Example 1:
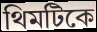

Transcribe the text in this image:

থিমটিকে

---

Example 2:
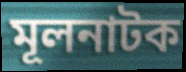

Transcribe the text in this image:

মূলনাটক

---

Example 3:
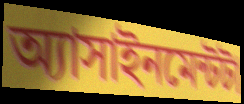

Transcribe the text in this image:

অ্যাসাইনমেন্টটা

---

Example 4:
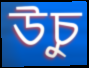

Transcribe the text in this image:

উচু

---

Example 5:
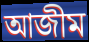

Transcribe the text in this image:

আজীম